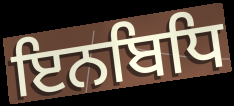
ਇਨਬਿਧਿ